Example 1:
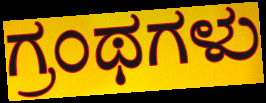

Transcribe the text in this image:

ಗ್ರಂಥಗಳು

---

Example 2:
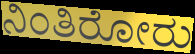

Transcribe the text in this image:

ನಿಂತಿರೋರು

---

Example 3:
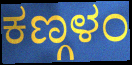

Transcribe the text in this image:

ಕಣ್ಗಳಂ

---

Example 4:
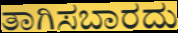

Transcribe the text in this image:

ತಾಗಿಸಬಾರದು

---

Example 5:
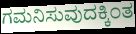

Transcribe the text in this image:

ಗಮನಿಸುವುದಕ್ಕಿಂತ